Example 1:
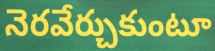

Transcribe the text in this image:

నెరవేర్చుకుంటూ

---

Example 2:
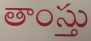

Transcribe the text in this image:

తాంస్తు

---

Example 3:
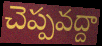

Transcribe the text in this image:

చెప్పవద్దా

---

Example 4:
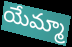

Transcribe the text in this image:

యేమ్మా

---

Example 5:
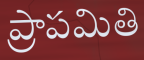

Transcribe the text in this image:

ప్రాపమితి